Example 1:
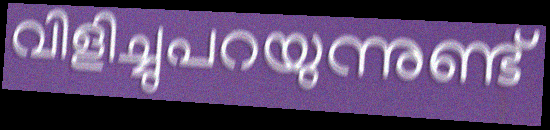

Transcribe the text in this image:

വിളിച്ചുപറയുന്നുണ്ട്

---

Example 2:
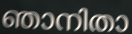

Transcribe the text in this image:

ഞാനിതാ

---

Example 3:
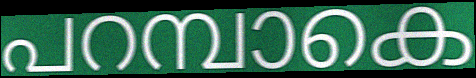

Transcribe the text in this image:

പറമ്പാകെ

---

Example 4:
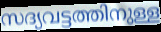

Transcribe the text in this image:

സദ്യവട്ടത്തിനുള്ള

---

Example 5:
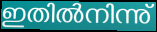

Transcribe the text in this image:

ഇതിൽനിന്നു്